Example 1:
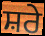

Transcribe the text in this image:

ਸ਼ਰੇ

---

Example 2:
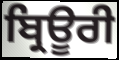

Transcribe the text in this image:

ਬ੍ਰਿਊਰੀ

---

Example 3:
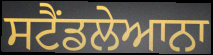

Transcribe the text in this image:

ਸਟੈਂਡਲੇਆਨਾ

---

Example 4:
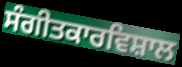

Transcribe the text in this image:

ਸੰਗੀਤਕਾਰਵਿਸ਼ਾਲ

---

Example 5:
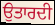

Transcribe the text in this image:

ਉਤਾਰਦੀ